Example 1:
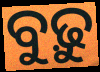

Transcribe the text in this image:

ବୁଢ଼ୁ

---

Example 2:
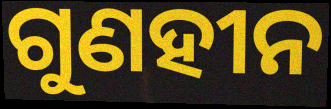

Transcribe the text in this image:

ଗୁଣହୀନ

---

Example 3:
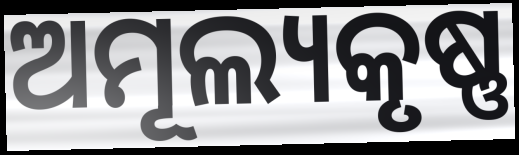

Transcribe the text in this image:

ଅମୂଲ୍ୟକୃଷ୍ଣ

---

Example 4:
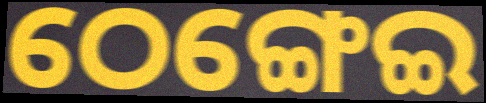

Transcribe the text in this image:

ଠେଙ୍ଗେଇ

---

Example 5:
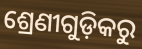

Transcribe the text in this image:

ଶ୍ରେଣୀଗୁଡ଼ିକରୁ